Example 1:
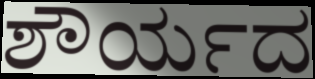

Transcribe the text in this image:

ಶೌರ್ಯದ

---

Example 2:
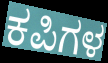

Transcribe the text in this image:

ಕಪಿಗಳ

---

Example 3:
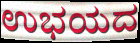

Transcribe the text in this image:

ಉಭಯದ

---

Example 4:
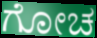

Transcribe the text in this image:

ಗೋಚ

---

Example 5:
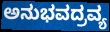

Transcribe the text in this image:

ಅನುಭವದ್ರವ್ಯ